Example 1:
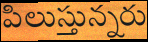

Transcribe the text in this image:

పిలుస్తున్నరు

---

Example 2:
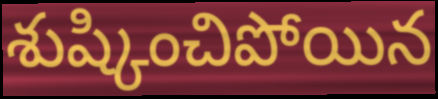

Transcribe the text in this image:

శుష్కించిపోయిన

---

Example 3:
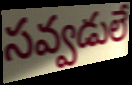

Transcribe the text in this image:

సవ్వడులే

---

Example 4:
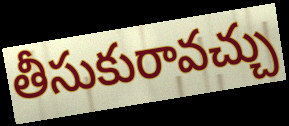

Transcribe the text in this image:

తీసుకురావచ్చు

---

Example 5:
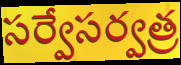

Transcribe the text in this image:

సర్వేసర్వత్ర